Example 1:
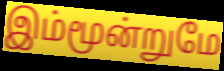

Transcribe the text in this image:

இம்மூன்றுமே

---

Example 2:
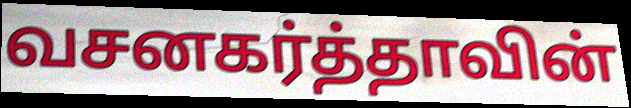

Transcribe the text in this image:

வசனகர்த்தாவின்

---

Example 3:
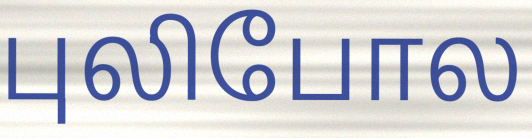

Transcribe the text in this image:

புலிபோல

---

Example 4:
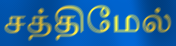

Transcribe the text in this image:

சத்திமேல்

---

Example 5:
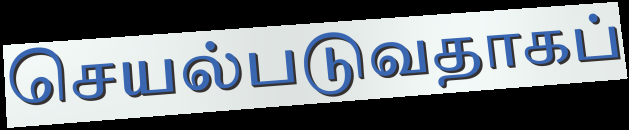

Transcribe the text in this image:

செயல்படுவதாகப்